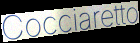
Cocciaretto